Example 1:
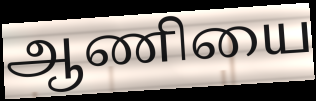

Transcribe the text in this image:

ஆணியை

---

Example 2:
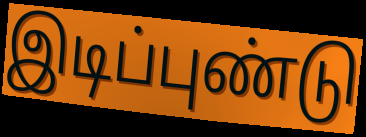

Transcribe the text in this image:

இடிப்புண்டு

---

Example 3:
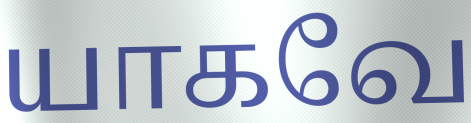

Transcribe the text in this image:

யாகவே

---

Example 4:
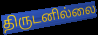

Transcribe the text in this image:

திருடனில்லை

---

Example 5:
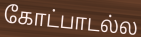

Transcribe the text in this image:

கோட்பாடல்ல